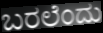
ಬರಲೆಂದು